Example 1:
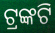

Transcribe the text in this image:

ଟ୍ରଙ୍କଟି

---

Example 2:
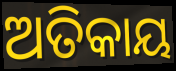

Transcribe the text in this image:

ଅତିକାୟ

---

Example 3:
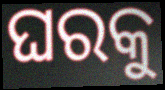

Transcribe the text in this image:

ଘରକୁ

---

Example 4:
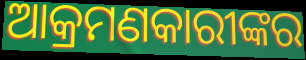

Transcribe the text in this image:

ଆକ୍ରମଣକାରୀଙ୍କର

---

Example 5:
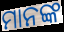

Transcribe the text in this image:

ମାନଙ୍କ